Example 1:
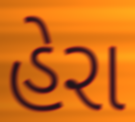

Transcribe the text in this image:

હેરા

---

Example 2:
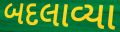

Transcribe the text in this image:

બદલાવ્યા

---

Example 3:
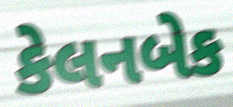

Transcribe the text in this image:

કેલનબેક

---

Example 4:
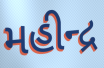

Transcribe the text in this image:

મહીન્દ્ર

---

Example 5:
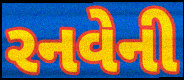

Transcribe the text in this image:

રનવેની